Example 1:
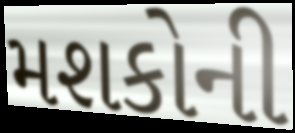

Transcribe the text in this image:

મશકોની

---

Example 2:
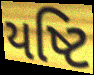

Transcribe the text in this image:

યષ્ટિ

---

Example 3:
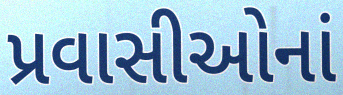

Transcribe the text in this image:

પ્રવાસીઓનાં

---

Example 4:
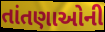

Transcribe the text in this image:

તાંતણાઓની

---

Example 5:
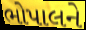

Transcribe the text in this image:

ભોપાલને